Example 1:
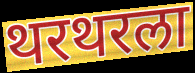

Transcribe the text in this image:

थरथरला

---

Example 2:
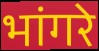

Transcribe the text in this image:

भांगरे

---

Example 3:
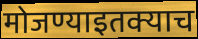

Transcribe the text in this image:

मोजण्याइतक्याच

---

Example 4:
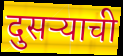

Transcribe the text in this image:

दुसऱ्याची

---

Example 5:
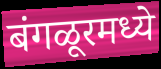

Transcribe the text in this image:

बंगळूरमध्ये